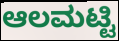
ಆಲಮಟ್ಟಿ